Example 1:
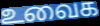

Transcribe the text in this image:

உவைக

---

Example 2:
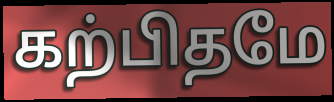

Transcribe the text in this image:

கற்பிதமே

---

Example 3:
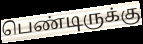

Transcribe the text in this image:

பெண்டிருக்கு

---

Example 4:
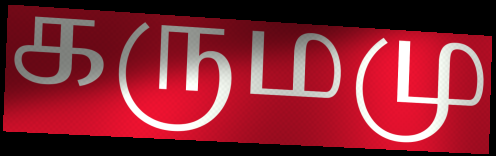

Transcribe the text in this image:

கருமமு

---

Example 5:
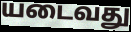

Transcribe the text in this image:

யடைவது